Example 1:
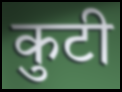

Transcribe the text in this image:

कुटी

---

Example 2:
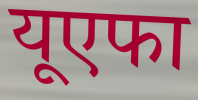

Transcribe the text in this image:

यूएफा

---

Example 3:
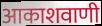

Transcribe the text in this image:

आकाशवाणी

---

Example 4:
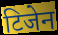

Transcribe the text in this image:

टिजेन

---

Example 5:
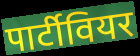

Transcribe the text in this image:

पार्टीवियर